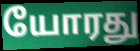
யோரது